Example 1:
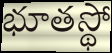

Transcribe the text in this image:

భూతస్థో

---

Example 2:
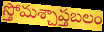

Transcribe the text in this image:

స్తోమశ్చాప్తబలం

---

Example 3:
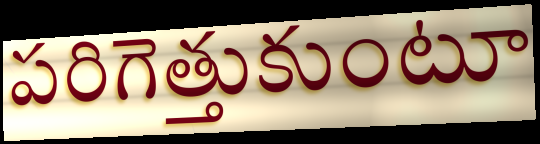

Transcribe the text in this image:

పరిగెత్తుకుంటూ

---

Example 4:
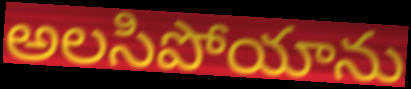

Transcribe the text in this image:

అలసిపోయాను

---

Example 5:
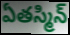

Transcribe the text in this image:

ఏతస్మిన్